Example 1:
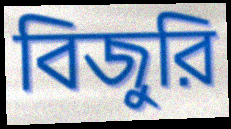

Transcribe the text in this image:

বিজুরি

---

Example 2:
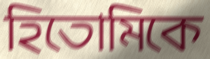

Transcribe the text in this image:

হিতোমিকে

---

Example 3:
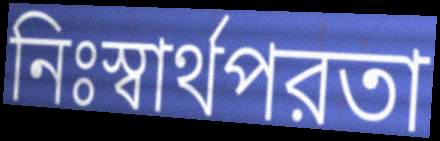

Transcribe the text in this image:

নিঃস্বার্থপরতা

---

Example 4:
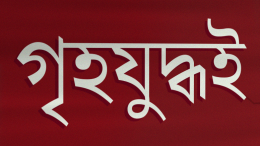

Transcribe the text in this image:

গৃহযুদ্ধই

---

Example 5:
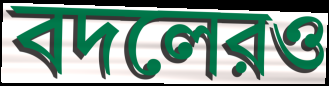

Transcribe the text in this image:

বদলেরও